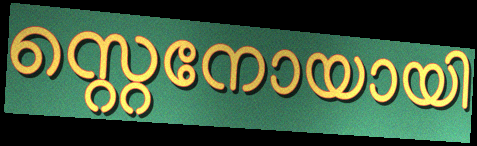
സ്റ്റെനോയായി